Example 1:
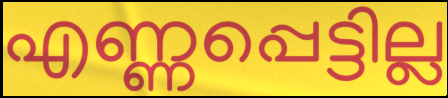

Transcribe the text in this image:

എണ്ണപ്പെട്ടില്ല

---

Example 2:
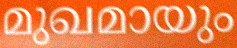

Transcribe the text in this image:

മുഖമായും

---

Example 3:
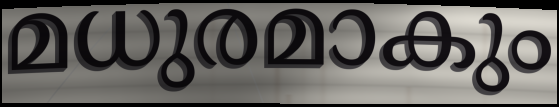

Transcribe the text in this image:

മധുരമാകും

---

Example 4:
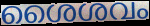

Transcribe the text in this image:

ശൈശവം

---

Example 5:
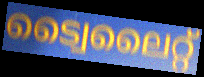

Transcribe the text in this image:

ട്വൈലൈറ്റ്